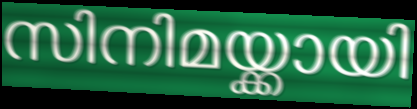
സിനിമയ്ക്കായി